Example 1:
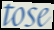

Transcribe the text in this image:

tose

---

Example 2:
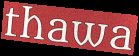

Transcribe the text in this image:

thawa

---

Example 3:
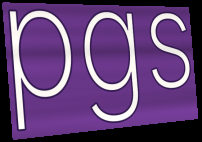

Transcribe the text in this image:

pgs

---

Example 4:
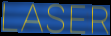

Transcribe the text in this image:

LASER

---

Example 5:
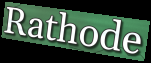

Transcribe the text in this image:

Rathode